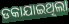
ଡକାଯାଇଥିଲା